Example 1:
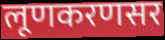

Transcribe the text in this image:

लूणकरणसर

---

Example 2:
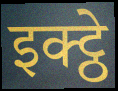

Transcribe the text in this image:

इक्ट्ठे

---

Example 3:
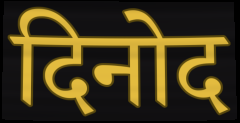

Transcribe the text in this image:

दिनोद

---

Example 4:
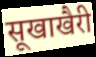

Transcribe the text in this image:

सूखाखैरी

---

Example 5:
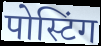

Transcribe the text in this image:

पोस्टिंग